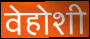
वेहोशी